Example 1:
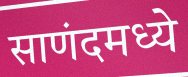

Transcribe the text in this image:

साणंदमध्ये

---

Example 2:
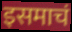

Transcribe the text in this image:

इसमाचं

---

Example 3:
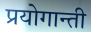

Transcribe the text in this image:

प्रयोगान्ती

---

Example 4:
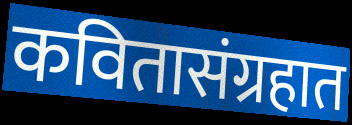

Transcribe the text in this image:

कवितासंग्रहात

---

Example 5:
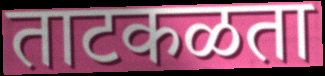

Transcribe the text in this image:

ताटकळता